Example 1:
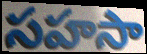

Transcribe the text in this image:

సహసా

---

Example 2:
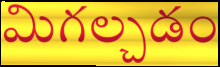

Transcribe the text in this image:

మిగల్చడం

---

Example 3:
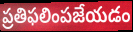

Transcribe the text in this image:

ప్రతిఫలింపజేయడం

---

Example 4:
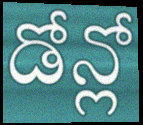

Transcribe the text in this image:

డోన్లో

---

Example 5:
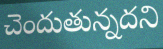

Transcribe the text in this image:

చెందుతున్నదని